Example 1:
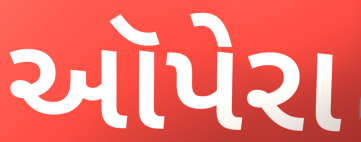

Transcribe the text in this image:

ઑપેરા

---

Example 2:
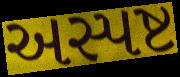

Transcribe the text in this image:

અસ્પષ્ટ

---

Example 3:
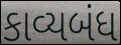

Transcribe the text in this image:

કાવ્યબંધ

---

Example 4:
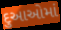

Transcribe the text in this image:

દુઆઓમાં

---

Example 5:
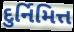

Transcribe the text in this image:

દુર્નિમિત્ત